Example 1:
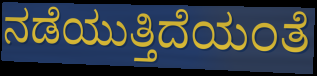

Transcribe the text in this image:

ನಡೆಯುತ್ತಿದೆಯಂತೆ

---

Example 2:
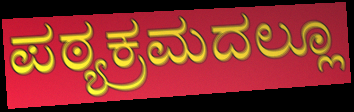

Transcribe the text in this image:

ಪಠ್ಯಕ್ರಮದಲ್ಲೂ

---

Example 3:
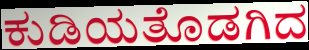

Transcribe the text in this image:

ಕುಡಿಯತೊಡಗಿದ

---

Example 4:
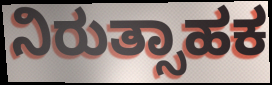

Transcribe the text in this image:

ನಿರುತ್ಸಾಹಕ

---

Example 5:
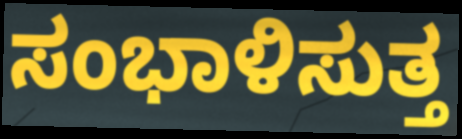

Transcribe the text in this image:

ಸಂಭಾಳಿಸುತ್ತ